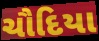
ચૌદિયા